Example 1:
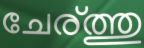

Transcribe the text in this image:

ചേര്ത്തു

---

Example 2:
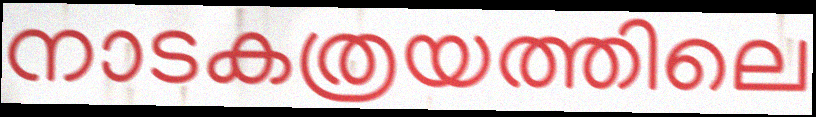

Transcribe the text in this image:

നാടകത്രയത്തിലെ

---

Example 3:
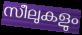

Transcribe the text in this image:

സീലുകളും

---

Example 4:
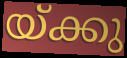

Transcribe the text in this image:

യ്ക്കു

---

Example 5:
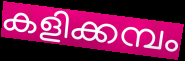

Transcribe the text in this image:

കളിക്കമ്പം